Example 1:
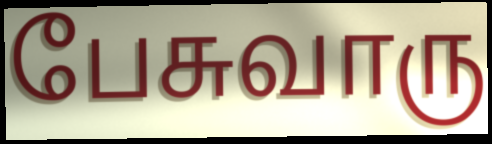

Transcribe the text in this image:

பேசுவாரு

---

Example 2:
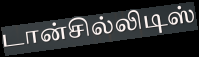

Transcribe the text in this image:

டான்சில்லிடிஸ்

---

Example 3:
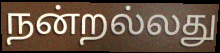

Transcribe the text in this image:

நன்றல்லது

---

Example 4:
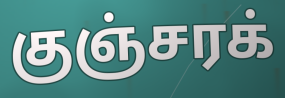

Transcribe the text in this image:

குஞ்சரக்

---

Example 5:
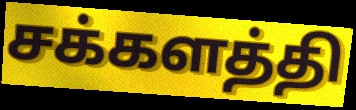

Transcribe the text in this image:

சக்களத்தி